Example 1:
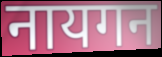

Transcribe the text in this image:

नायगन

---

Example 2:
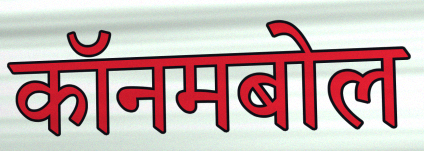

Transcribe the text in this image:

कॉनमबोल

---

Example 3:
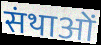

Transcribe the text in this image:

संथाओं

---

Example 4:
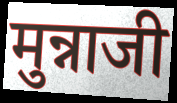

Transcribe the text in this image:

मुन्नाजी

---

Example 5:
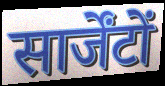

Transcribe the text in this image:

सार्जेंटों